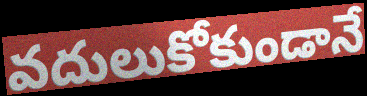
వదులుకోకుండానే